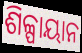
ଶିଳ୍ପାୟାନ